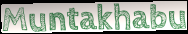
Muntakhabu